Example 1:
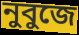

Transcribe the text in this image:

নুবুজে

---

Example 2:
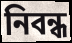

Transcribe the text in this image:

নিবন্ধ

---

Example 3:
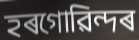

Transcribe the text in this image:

হৰগোৱিন্দৰ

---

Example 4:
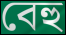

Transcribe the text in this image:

বেহু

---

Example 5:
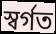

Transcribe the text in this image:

স্বৰ্গত